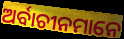
ଅର୍ବାଚୀନମାନେ